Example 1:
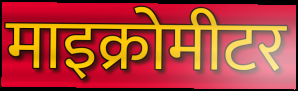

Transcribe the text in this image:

माइक्रोमीटर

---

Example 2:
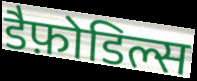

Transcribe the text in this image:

डैफ़ोडिल्स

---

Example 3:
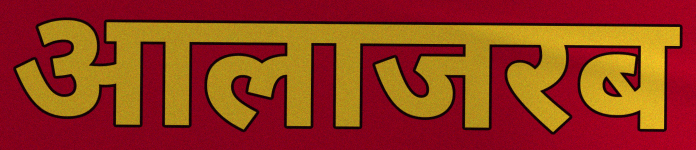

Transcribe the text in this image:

आलाजरब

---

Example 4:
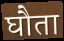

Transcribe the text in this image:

घौता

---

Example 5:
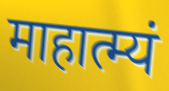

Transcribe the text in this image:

माहात्म्यं